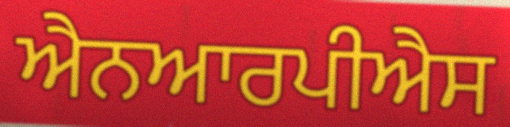
ਐਨਆਰਪੀਐਸ